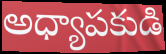
అధ్యాపకుడి